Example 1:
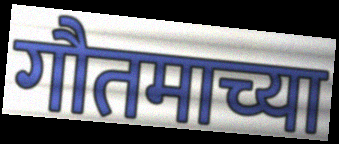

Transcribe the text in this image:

गौतमाच्या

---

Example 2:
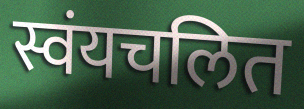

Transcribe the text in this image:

स्वंयचलित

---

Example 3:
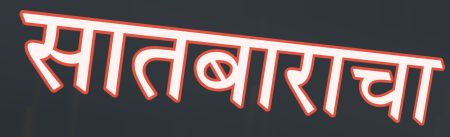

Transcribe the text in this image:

सातबाराचा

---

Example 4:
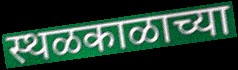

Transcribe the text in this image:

स्थळकाळाच्या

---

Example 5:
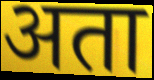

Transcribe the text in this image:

अता